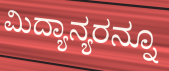
ಮಿದ್ಯಾನ್ಯರನ್ನೂ